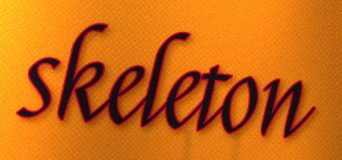
skeleton